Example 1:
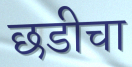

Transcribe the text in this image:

छडीचा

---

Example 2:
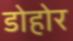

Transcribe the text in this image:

डोहोर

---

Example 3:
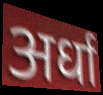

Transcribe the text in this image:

अर्धा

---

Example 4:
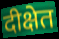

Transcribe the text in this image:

दीक्षेत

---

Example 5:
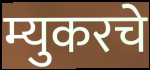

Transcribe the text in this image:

म्युकरचे